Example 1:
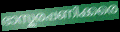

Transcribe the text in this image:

ഭാസ്കരപ്പണിക്കരെ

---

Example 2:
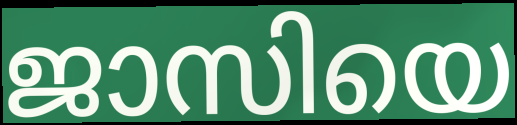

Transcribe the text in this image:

ജാസിയെ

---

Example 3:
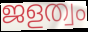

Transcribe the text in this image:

ജളത്വം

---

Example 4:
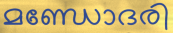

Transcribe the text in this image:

മണ്ഡോദരി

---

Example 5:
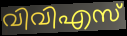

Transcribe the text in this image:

വിവിഎസ്